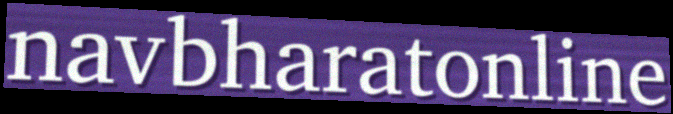
navbharatonline